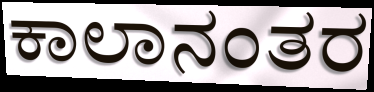
ಕಾಲಾನಂತರ